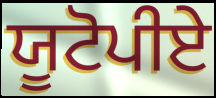
ਯੂਟੋਪੀਏ